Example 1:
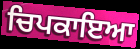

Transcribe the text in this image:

ਚਿਪਕਾਇਆ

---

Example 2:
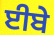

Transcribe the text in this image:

ਈਬੇ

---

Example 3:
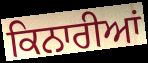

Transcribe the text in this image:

ਕਿਨਾਰੀਆਂ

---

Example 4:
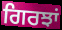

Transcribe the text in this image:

ਗਿਰਝਾਂ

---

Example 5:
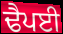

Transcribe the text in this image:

ਢੈਪਈ